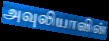
அவுலியாவின்